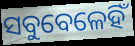
ସବୁବେଳେହିଁ